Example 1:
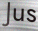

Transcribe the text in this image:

Jus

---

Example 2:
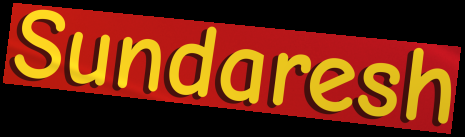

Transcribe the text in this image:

Sundaresh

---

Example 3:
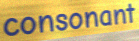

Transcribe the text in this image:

consonant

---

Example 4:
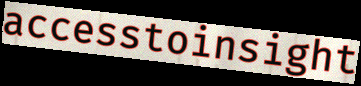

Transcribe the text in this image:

accesstoinsight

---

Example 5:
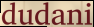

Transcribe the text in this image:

dudani